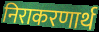
निराकरणार्थ